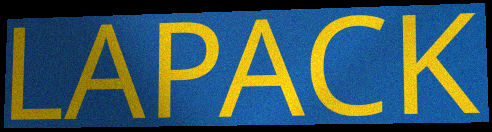
LAPACK